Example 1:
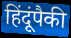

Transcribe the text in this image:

हिंदूंपैकी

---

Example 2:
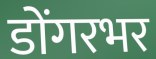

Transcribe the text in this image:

डोंगरभर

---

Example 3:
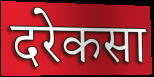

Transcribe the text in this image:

दरेकसा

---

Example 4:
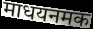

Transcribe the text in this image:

माधयनमक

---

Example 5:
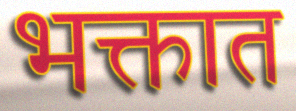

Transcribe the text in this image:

भक्तात